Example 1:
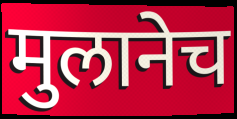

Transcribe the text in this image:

मुलानेच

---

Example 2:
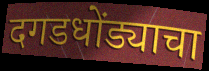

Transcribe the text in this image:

दगडधोंड्याचा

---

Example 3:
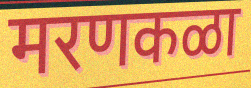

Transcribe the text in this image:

मरणकळा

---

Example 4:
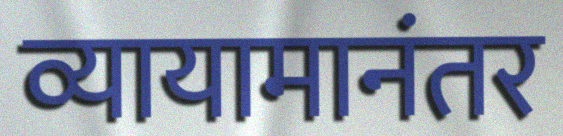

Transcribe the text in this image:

व्यायामानंतर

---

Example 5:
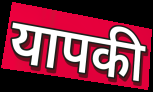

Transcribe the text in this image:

यापकी